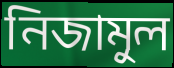
নিজামুল